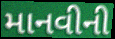
માનવીની